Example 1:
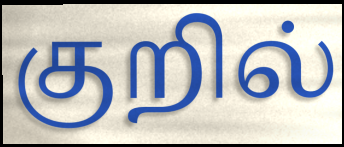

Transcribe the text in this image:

குறில்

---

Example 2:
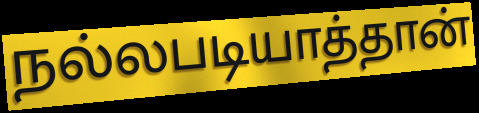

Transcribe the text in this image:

நல்லபடியாத்தான்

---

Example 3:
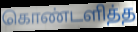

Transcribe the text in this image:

கொண்டளித்த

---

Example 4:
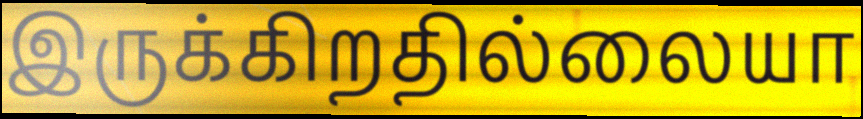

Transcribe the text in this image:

இருக்கிறதில்லையா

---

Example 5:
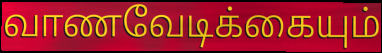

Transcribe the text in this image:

வாணவேடிக்கையும்